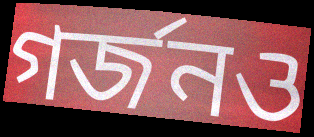
গর্জনও